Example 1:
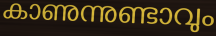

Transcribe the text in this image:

കാണുന്നുണ്ടാവും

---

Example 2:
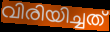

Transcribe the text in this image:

വിരിയിച്ചത്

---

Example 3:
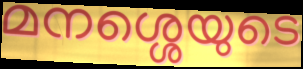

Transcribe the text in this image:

മനശ്ശെയുടെ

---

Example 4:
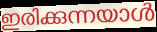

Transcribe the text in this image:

ഇരിക്കുന്നയാൾ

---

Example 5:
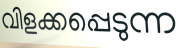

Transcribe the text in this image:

വിളക്കപ്പെടുന്ന